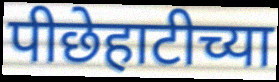
पीछेहाटीच्या